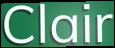
Clair